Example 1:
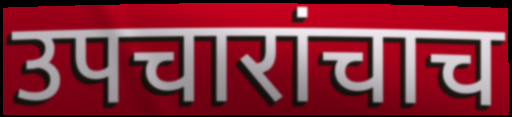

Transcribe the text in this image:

उपचारांचाच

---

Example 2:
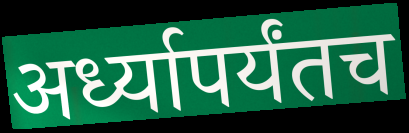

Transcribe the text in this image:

अर्ध्यापर्यंतच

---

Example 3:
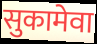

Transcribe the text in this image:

सुकामेवा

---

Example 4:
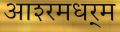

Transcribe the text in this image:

आश्रमधर्म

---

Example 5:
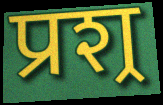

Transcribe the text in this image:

प्रश्र